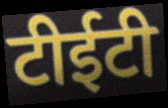
टीईटी